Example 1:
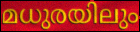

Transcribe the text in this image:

മധുരയിലും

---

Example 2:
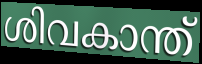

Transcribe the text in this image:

ശിവകാന്ത്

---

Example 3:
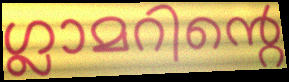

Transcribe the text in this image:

ഗ്ലാമറിന്റെ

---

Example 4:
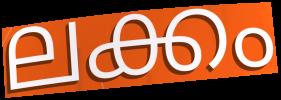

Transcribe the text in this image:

ലക്കം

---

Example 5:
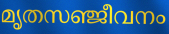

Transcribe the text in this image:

മൃതസഞ്ജീവനം